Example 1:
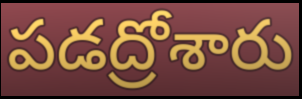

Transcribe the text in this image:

పడద్రోశారు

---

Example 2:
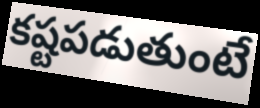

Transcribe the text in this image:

కష్టపడుతుంటే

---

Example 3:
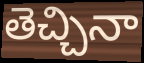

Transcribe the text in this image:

తెచ్చినా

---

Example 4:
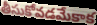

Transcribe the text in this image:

తీసుకోవడమేకాక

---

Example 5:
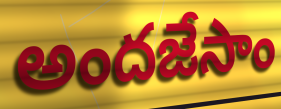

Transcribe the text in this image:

అందజేసాం